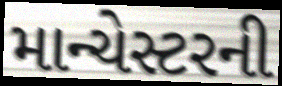
માન્ચેસ્ટરની